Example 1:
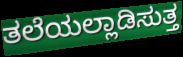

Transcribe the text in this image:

ತಲೆಯಲ್ಲಾಡಿಸುತ್ತ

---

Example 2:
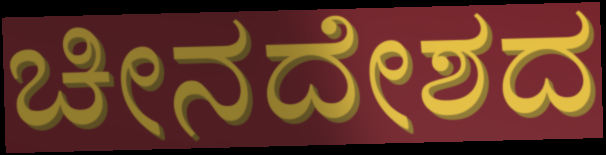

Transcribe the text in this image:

ಚೀನದೇಶದ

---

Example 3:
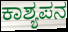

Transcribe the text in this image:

ಕಾಶ್ಯಪನ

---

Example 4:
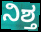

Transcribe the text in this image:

ನಿಶ್ತ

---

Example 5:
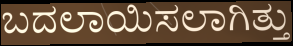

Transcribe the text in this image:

ಬದಲಾಯಿಸಲಾಗಿತ್ತು